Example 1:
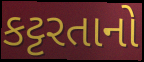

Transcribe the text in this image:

કટ્ટરતાનો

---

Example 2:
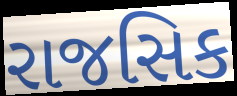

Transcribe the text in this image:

રાજસિક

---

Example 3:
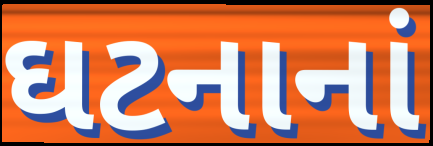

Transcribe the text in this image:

ઘટનાનાં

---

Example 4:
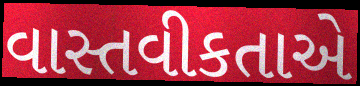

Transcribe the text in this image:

વાસ્તવીકતાએ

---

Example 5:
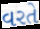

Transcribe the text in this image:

વરતે